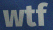
wtf